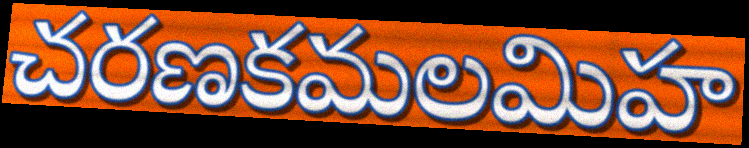
చరణకమలమిహ